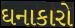
ઘનાકારો